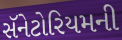
સૅનેટોરિયમની